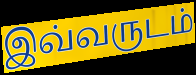
இவ்வருடம்